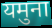
यमुना